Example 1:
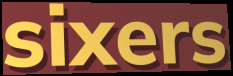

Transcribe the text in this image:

sixers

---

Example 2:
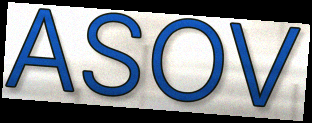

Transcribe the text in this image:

ASOV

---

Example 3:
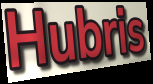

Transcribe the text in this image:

Hubris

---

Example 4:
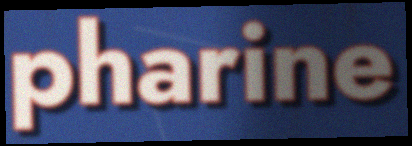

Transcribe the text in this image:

pharine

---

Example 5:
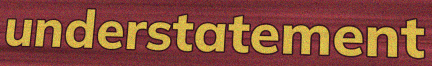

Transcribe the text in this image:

understatement